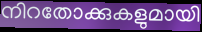
നിറതോക്കുകളുമായി